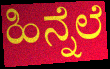
ಹಿನ್ನೆಲೆ